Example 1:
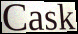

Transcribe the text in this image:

Cask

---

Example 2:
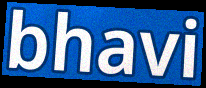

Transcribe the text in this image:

bhavi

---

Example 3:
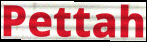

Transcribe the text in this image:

Pettah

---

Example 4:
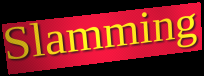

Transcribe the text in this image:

Slamming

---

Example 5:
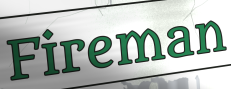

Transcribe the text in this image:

Fireman